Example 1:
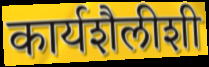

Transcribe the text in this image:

कार्यशैलीशी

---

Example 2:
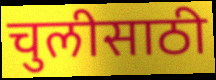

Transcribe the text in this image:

चुलीसाठी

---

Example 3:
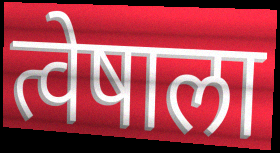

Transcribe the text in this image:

त्वेषाला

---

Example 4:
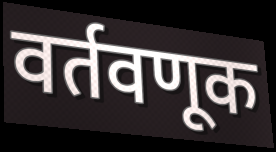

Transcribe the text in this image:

वर्तवणूक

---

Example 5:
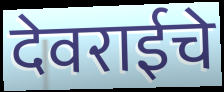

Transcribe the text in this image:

देवराईचे